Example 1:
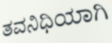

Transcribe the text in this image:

ತವನಿಧಿಯಾಗಿ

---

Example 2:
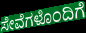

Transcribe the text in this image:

ಸೇವೆಗಳೊಂದಿಗೆ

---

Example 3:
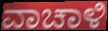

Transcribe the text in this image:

ವಾಚಾಳಿ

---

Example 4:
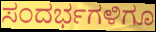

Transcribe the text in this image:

ಸಂದರ್ಭಗಳಿಗೂ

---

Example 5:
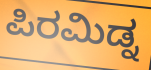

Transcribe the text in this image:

ಪಿರಮಿಡ್ನ